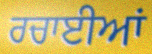
ਰਚਾਈਆਂ